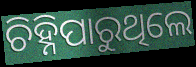
ଚିହ୍ନିପାରୁଥିଲେ